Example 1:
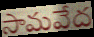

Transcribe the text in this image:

సామవేద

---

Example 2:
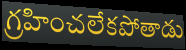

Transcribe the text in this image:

గ్రహించలేకపోతాడు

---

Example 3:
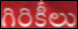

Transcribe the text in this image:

గిరికీలు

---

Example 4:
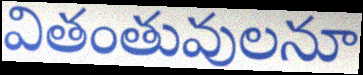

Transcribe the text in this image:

వితంతువులనూ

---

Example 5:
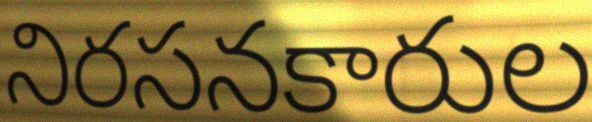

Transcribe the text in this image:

నిరసనకారుల